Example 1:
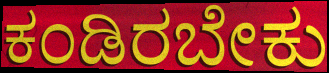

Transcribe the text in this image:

ಕಂಡಿರಬೇಕು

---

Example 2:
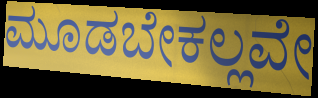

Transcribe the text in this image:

ಮೂಡಬೇಕಲ್ಲವೇ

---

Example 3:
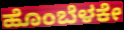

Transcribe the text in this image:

ಹೊಂಬೆಳಕೇ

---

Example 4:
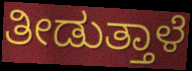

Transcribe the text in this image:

ತೀಡುತ್ತಾಳೆ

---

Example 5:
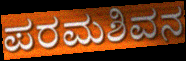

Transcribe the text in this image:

ಪರಮಶಿವನ